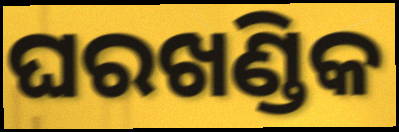
ଘରଖଣ୍ଡିକ